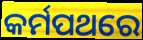
କର୍ମପଥରେ